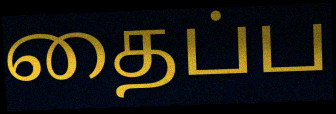
தைப்ப